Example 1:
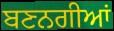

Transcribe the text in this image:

ਬਣਨਗੀਆਂ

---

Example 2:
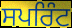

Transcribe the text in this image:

ਸਪਰਿੰਟ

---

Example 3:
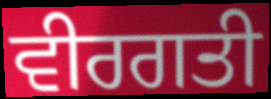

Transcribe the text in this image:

ਵੀਰਗਤੀ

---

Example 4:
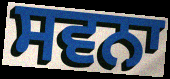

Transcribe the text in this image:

ਸਵਨਾ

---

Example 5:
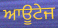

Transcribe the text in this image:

ਆਊਟੇਜ